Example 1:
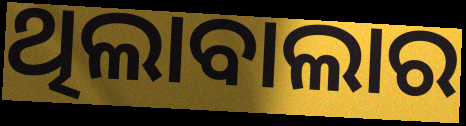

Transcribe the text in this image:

ଥିଲାବାଲାର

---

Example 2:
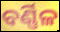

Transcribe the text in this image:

ବର୍ଣ୍ଣିଳ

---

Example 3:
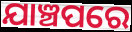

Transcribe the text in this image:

ଯାଞ୍ଚପରେ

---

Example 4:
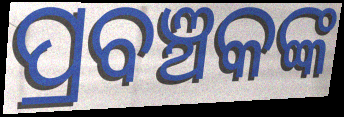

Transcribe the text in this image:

ପ୍ରବଞ୍ଚକଙ୍କ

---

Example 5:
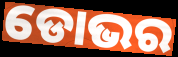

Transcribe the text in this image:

ଡୋଭର